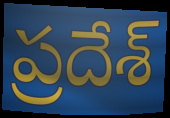
ప్రదేశ్